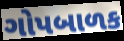
ગોપબાળક